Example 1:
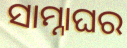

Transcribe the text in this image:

ସାମ୍ନାଘର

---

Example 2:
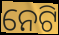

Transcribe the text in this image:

ନେଟି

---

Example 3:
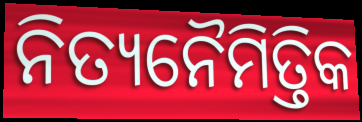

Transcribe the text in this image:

ନିତ୍ୟନୈମିତ୍ତିକ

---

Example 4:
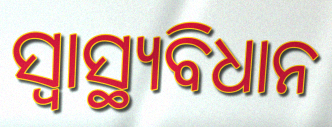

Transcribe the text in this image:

ସ୍ୱାସ୍ଥ୍ୟବିଧାନ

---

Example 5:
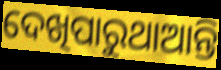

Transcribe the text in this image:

ଦେଖିପାରୁଥାଆନ୍ତି